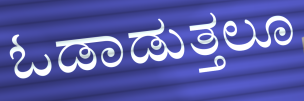
ಓಡಾಡುತ್ತಲೂ